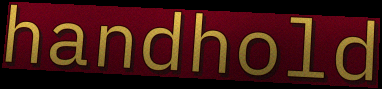
handhold